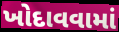
ખોદાવવામાં